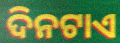
ଦିନଟାଏ